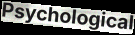
Psychological